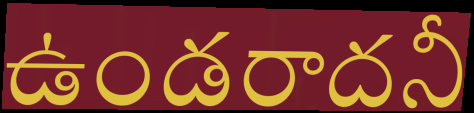
ఉండరాదనీ